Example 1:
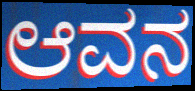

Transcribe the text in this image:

ಆವನ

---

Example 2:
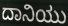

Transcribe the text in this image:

ದಾನಿಯು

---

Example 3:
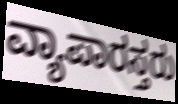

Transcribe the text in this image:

ವ್ಯಾಪಾರಸ್ತರು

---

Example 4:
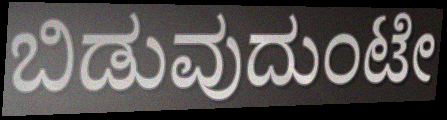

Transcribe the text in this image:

ಬಿಡುವುದುಂಟೇ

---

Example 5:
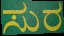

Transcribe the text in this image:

ಸುರ